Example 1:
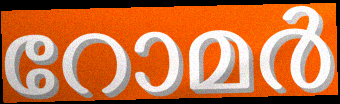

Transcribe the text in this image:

റോമർ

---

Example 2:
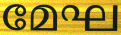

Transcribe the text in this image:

മേഘ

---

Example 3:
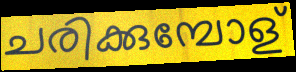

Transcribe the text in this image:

ചരിക്കുമ്പോള്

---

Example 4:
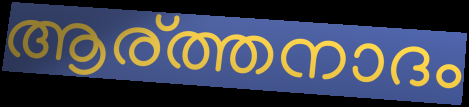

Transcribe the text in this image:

ആര്ത്തനാദം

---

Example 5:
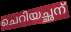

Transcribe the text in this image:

ചെറിയച്ഛന്